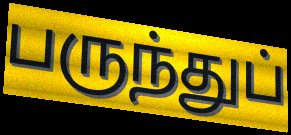
பருந்துப்